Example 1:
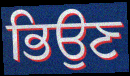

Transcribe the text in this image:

ਭਿਉਣ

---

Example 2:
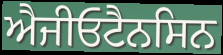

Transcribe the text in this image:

ਐਜੀਓਟੈਨਸਿਨ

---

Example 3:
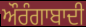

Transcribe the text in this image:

ਔਰੰਗਾਬਾਦੀ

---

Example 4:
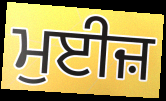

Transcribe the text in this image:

ਮੁਈਜ਼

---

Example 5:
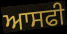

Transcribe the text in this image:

ਆਸਫੀ